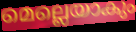
മെല്ലെയാകും